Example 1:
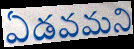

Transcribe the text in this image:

ఏడవమని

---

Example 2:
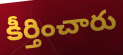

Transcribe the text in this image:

కీర్తించారు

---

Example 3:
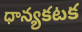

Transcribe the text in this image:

ధాన్యకటక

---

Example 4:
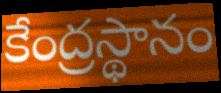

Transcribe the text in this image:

కేంద్రస్థానం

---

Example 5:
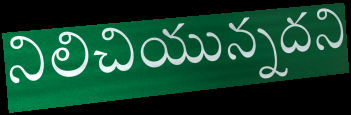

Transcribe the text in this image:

నిలిచియున్నదని